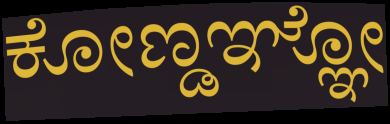
ಕೋಣ್ಡಞ್ಞೋ